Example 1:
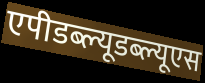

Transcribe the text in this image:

एपीडब्ल्यूडब्ल्यूएस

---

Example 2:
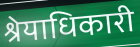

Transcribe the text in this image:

श्रेयाधिकारी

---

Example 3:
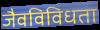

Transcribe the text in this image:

जैवविविधता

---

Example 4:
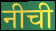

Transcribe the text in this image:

नीची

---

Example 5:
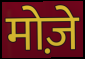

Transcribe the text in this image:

मोज़े